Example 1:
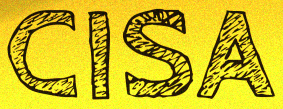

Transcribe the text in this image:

CISA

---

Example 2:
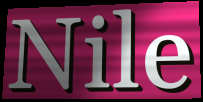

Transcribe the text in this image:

Nile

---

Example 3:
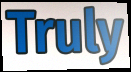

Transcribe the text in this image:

Truly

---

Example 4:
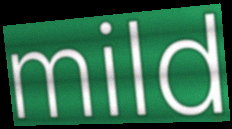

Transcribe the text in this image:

mild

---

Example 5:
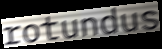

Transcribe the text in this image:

rotundus